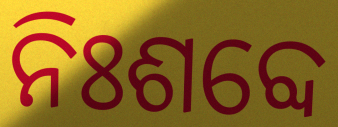
ନିଃଶବ୍ଦେ